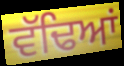
ਵੱਢਿਆਂ